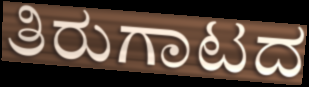
ತಿರುಗಾಟದ